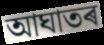
আঘাতৰ